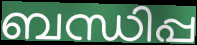
ബന്ധിപ്പ